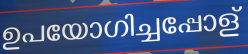
ഉപയോഗിച്ചപ്പോള്